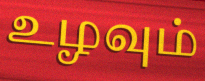
உழவும்